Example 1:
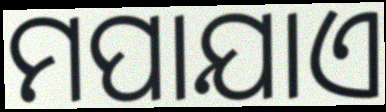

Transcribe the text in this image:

ମପାଯାଏ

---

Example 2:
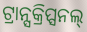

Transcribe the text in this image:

ଟ୍ରାନ୍ସକ୍ରିପ୍ସନଲ୍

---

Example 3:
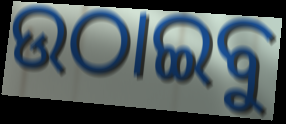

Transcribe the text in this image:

ଉଠାଇବୁ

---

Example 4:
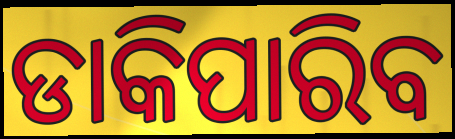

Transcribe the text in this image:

ଡାକିପାରିବ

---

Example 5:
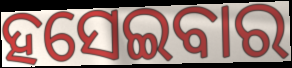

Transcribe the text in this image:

ହସେଇବାର